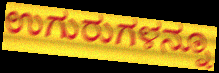
ಉಗುರುಗಳನ್ನೂ